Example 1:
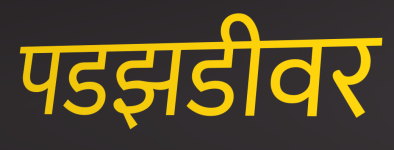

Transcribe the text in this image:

पडझडीवर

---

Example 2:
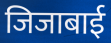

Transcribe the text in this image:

जिजाबाई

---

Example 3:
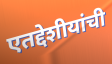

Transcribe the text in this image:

एतद्देशीयांची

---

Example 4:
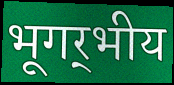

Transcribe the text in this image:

भूगर्भीय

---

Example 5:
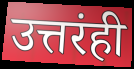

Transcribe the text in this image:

उत्तरंही